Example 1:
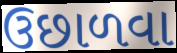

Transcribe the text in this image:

ઉછાળવા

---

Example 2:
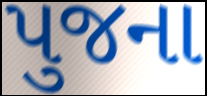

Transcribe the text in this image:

પુજના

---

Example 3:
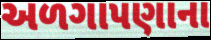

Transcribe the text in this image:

અળગાપણાના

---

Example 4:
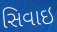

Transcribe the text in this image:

સિવાઇ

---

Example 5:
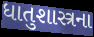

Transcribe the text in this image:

ધાતુશાસ્ત્રના